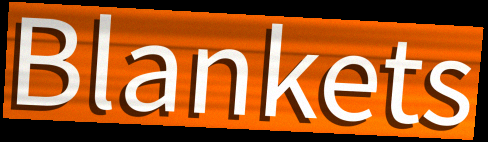
Blankets